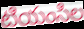
టియంసిల